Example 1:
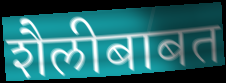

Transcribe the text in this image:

शैलीबाबत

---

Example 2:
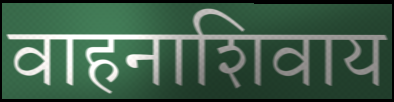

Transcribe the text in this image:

वाहनाशिवाय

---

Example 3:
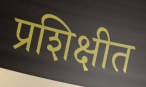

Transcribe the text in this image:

प्रशिक्षीत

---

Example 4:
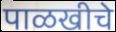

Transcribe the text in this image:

पाळखीचे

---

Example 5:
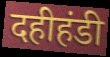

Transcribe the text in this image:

दहीहंडी